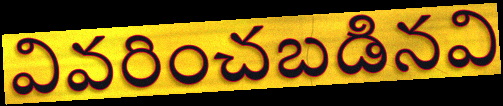
వివరించబడినవి